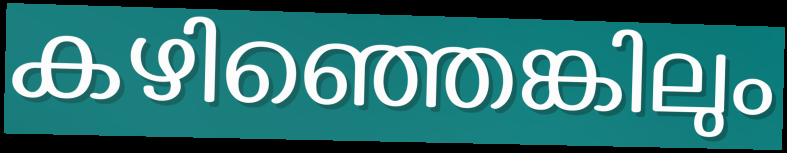
കഴിഞ്ഞെങ്കിലും